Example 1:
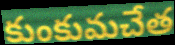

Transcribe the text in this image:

కుంకుమచేత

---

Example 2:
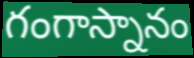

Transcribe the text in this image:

గంగాస్నానం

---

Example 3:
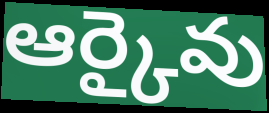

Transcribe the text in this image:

ఆర్కైవు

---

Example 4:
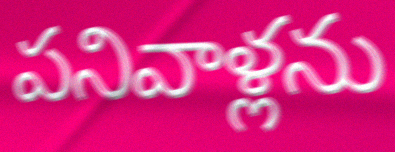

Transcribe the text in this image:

పనివాళ్లను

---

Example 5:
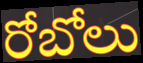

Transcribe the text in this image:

రోబోలు